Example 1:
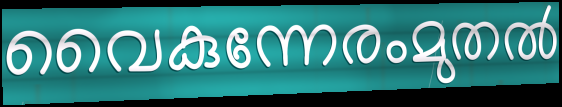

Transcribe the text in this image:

വൈകുന്നേരംമുതൽ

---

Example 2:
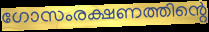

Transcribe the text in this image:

ഗോസംരക്ഷണത്തിന്റെ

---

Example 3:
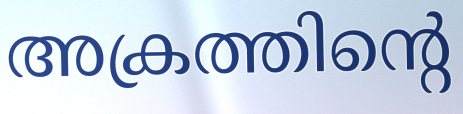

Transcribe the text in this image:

അക്രത്തിന്റെ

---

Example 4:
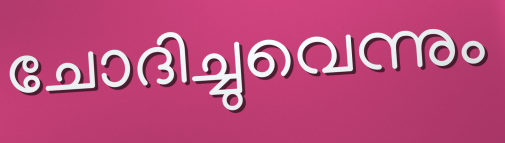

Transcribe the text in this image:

ചോദിച്ചുവെന്നും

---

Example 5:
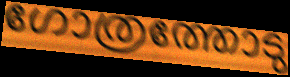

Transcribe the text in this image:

ഗോത്രത്തോടു